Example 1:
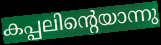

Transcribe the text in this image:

കപ്പലിന്റെയാന്നു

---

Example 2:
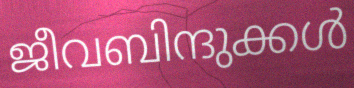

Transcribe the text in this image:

ജീവബിന്ദുക്കൾ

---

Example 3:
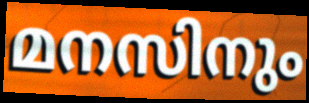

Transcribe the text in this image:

മനസിനും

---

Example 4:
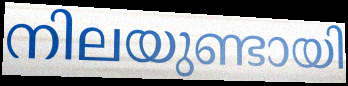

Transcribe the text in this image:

നിലയുണ്ടായി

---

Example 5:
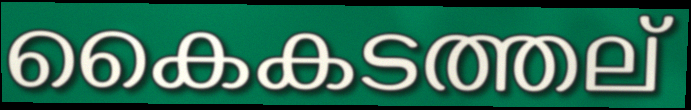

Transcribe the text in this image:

കൈകടത്തല്